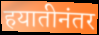
हयातीनंतर